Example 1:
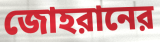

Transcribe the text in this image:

জোহরানের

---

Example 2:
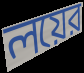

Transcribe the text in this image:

লয়ের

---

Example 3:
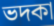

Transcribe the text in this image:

ভদকা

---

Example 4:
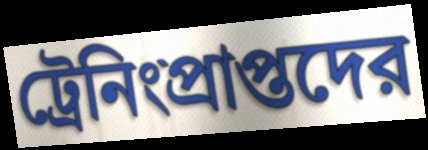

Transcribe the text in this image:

ট্রেনিংপ্রাপ্তদের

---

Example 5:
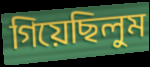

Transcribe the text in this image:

গিয়েছিলুম